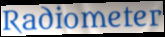
Radiometer